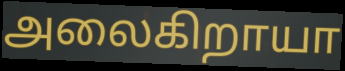
அலைகிறாயா